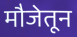
मौजेतून